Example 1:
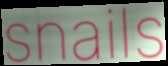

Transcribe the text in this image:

snails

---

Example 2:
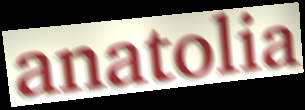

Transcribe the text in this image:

anatolia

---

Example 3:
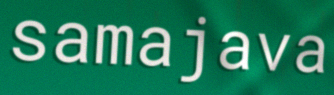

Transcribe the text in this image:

samajava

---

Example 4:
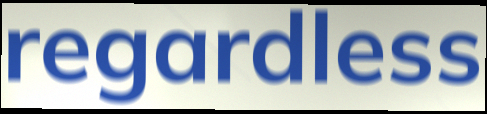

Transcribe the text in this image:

regardless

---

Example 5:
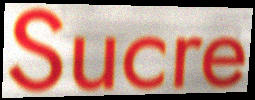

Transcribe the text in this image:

Sucre